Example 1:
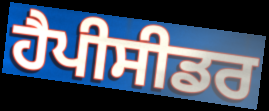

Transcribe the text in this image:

ਹੈਪੀਸੀਡਰ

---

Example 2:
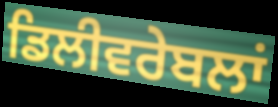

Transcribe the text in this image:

ਡਿਲੀਵਰੇਬਲਾਂ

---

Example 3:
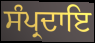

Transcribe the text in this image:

ਸੰਪ੍ਰਦਾਇ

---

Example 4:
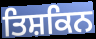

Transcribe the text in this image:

ਤਿਸ਼ਕਿਨ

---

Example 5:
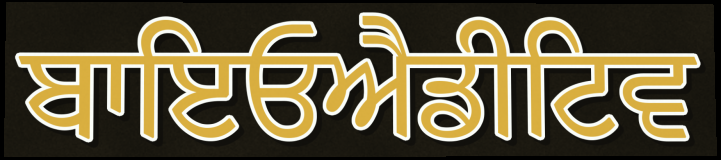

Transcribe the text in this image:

ਬਾਇਓਐਡੀਟਿਵ